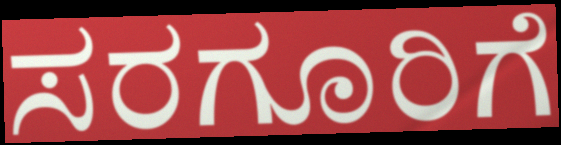
ಸರಗೂರಿಗೆ